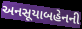
અનસૂયાબહેનની